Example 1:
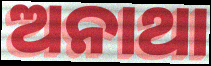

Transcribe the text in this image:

ଅନାଥା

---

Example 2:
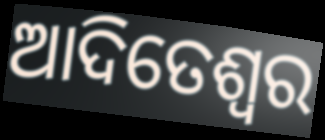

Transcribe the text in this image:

ଆଦିତେଶ୍ଵର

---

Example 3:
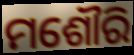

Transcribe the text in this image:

ମଶୌରି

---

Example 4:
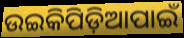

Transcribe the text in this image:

ଉଇକିପିଡ଼ିଆପାଇଁ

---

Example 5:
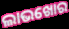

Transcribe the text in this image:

ଲାଭଖୋର